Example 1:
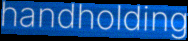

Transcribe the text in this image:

handholding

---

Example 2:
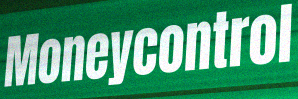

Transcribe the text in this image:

Moneycontrol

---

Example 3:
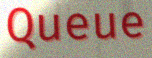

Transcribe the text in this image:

Queue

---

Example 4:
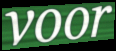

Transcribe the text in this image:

voor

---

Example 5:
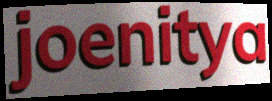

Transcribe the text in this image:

joenitya